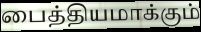
பைத்தியமாக்கும்